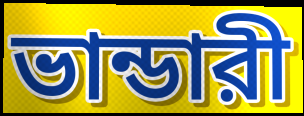
ভান্ডারী